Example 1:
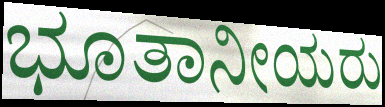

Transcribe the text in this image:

ಭೂತಾನೀಯರು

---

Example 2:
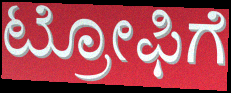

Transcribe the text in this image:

ಟ್ರೋಫಿಗೆ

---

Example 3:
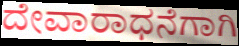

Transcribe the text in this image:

ದೇವಾರಾಧನೆಗಾಗಿ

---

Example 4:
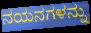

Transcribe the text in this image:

ನಯನಗಳನ್ನು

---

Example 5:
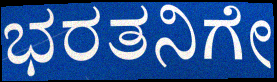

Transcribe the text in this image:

ಭರತನಿಗೇ